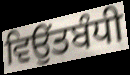
ਵਿਉਂਤਬੰਧੀ